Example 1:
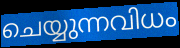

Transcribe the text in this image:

ചെയ്യുന്നവിധം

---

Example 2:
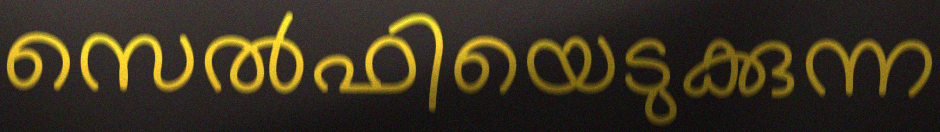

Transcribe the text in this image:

സെൽഫിയെടുക്കുന്ന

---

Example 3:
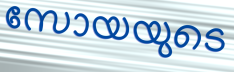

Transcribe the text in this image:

സോയയുടെ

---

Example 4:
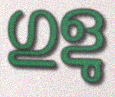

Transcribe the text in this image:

ഗുളു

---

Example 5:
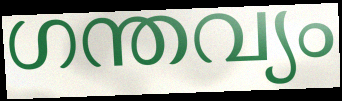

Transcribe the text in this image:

ഗന്തവ്യം